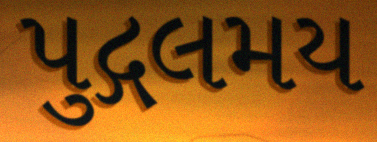
પુદ્ગલમય